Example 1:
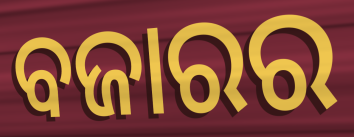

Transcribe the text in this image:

ବଜାରର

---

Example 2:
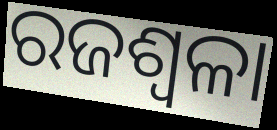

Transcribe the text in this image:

ରଜଶ୍ୱଳା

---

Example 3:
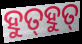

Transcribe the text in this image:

ହୁତ୍‍ହୁତ୍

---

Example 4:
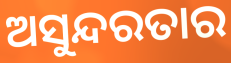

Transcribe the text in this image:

ଅସୁନ୍ଦରତାର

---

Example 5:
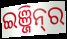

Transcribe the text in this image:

ଇଞ୍ଜିନ୍‌ର